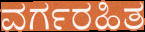
ವರ್ಗರಹಿತ